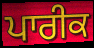
ਪਾਰੀਕ